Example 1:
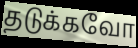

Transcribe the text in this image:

தடுக்கவோ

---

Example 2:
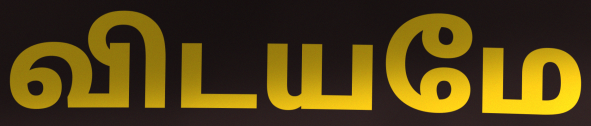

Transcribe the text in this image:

விடயமே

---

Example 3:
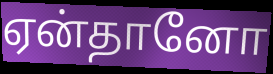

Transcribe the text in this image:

ஏன்தானோ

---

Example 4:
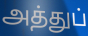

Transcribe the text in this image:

அத்துப்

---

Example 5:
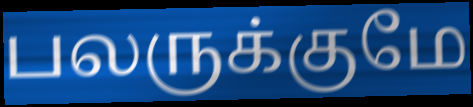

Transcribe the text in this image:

பலருக்குமே